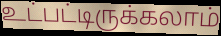
உட்பட்டிருக்கலாம்